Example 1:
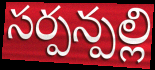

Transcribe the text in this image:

సర్పన్పల్లి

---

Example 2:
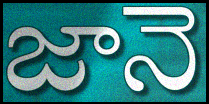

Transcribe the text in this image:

జానె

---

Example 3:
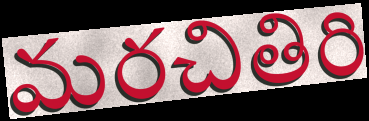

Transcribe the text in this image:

మరచితిరి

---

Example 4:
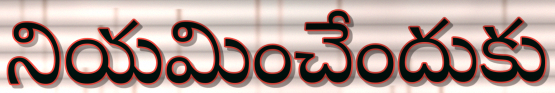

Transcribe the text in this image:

నియమించేందుకు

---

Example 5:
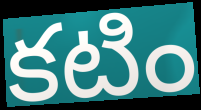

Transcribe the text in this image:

కటిం